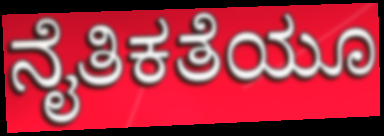
ನೈತಿಕತೆಯೂ